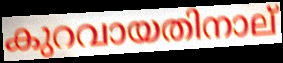
കുറവായതിനാല്